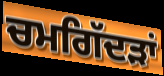
ਚਮਗਿੱਦੜਾਂ